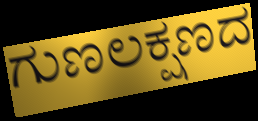
ಗುಣಲಕ್ಷಣದ